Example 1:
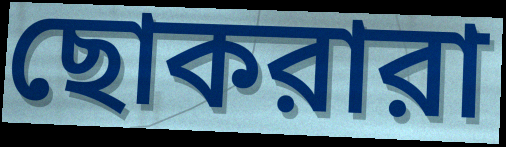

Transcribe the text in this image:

ছোকরারা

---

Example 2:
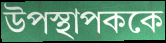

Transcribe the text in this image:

উপস্থাপককে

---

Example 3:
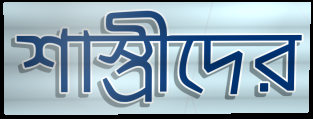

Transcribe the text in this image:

শাস্ত্রীদের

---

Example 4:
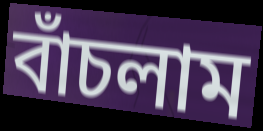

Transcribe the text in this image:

বাঁচলাম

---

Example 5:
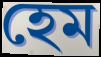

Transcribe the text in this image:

হেম